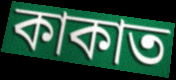
কাকাত